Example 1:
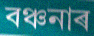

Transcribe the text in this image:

বঞ্চনাৰ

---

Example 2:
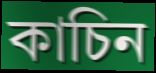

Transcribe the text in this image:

কাচিন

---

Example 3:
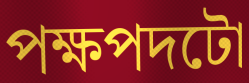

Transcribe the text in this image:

পক্ষপদটো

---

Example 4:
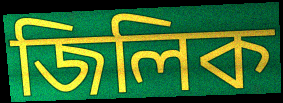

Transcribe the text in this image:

জিলিক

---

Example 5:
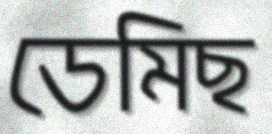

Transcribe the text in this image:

ডেমিছ